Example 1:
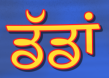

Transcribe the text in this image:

ਡੱਡਾਂ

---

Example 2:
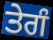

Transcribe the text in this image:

ਤੇਗੰ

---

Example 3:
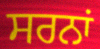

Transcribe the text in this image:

ਸਰਨਾਂ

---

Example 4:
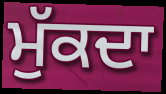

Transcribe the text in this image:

ਮੁੱਕਦਾ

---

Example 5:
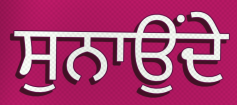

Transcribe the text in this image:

ਸੁਨਾਉਂਦੇ